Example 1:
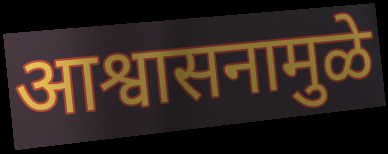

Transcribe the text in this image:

आश्वासनामुळे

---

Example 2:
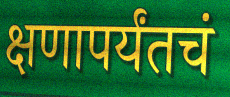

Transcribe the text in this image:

क्षणापर्यंतचं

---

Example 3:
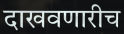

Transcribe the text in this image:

दाखवणारीच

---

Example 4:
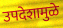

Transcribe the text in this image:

उपदेशामुळे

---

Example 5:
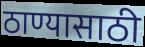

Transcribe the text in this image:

ठाण्यासाठी